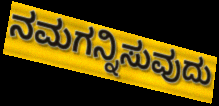
ನಮಗನ್ನಿಸುವುದು